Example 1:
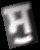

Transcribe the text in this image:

ਸੁ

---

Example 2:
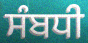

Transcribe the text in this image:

ਸੰਬਧੀ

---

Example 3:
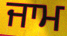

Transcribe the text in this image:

ਜਾਮ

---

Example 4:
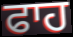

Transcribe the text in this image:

ਫਾਹ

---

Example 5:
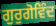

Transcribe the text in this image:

ਗੁਰੁਗੋਵਿੰਦ